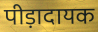
पीड़ादायक